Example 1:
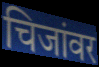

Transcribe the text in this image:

चिजांवर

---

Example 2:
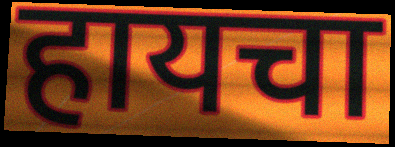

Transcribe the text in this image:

हायचा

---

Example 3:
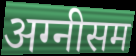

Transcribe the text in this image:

अग्नीसम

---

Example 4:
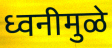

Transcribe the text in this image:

ध्वनीमुळे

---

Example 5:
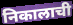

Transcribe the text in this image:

निकालाची